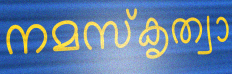
നമസ്കൃത്വാ